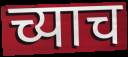
च्याच